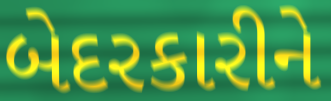
બેદરકારીને